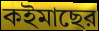
কইমাছের